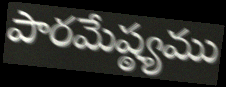
పారమేష్ఠ్యము